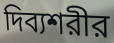
দিব্যশরীর